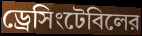
ড্রেসিংটেবিলের